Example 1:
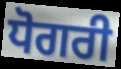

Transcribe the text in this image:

ਧੋਗਰੀ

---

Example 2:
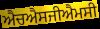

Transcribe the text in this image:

ਐਚਐਸਜੀਐਮਸੀ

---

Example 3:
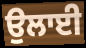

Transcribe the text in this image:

ਉਲਾਈ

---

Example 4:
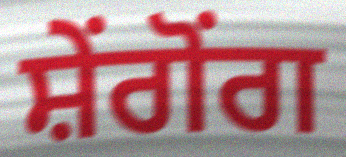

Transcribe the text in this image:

ਸ਼ੇਂਗੋਂਗ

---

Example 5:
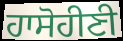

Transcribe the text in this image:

ਹਾਸੋਹੀਣੀ